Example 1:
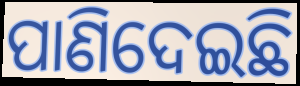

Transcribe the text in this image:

ପାଣିଦେଇଛି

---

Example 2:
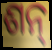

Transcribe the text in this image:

ଶନ୍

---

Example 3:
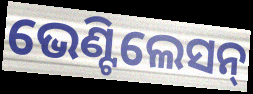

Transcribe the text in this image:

ଭେଣ୍ଟିଲେସନ୍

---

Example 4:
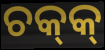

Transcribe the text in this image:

ଚକ୍‌କ୍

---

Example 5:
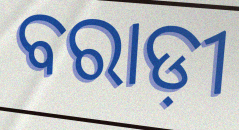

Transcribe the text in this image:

ବରାଡ଼ୀ